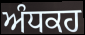
ਅੰਧਕਹ